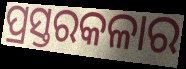
ପ୍ରସ୍ତରକଳାର